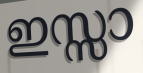
ഇസ്സാ